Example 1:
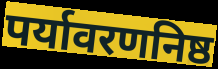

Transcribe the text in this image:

पर्यावरणनिष्ठ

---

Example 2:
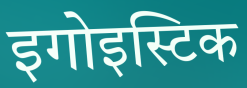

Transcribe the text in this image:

इगोइस्टिक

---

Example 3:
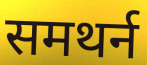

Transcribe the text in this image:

समथर्न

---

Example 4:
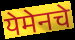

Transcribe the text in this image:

येमेनचे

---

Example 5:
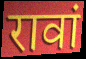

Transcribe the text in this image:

रावां